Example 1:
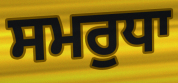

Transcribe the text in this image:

ਸਮਰੁਧਾ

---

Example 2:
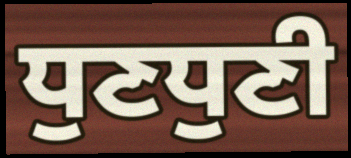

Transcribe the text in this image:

ਧੁਣਧੁਣੀ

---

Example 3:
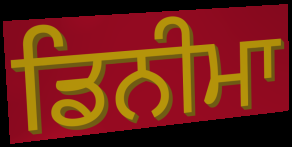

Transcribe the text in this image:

ਡਿਨੀਮਾ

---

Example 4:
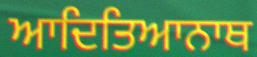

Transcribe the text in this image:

ਆਦਿਤਿਆਨਾਥ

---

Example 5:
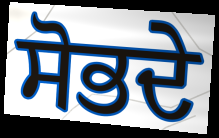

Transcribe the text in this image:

ਸੋਭਦੇ